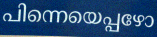
പിന്നെയെപ്പഴോ